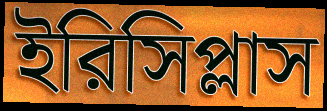
ইরিসিপ্লাস